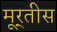
मूर्तीस